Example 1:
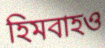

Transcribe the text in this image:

হিমবাহও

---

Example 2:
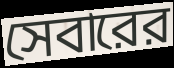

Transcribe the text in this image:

সেবারের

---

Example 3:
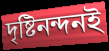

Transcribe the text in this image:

দৃষ্টিনন্দনই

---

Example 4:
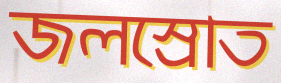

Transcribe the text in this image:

জলস্রোত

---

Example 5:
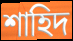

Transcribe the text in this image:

শাহিদ